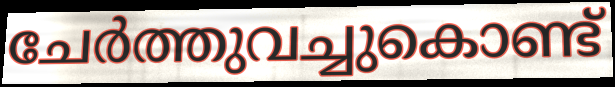
ചേർത്തുവച്ചുകൊണ്ട്